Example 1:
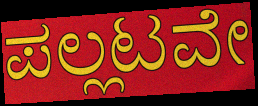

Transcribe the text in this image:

ಪಲ್ಲಟವೇ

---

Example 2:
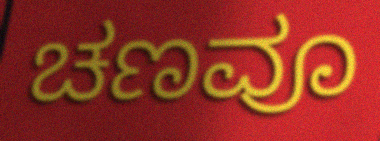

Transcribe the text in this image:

ಚಣವೂ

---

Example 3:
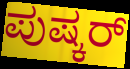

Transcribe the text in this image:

ಪುಷ್ಕರ್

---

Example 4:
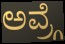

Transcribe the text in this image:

ಅವ್ರ್ಗೆ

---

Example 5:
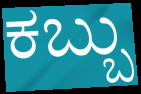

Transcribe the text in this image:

ಕಬ್ಬು